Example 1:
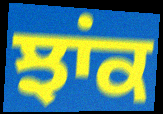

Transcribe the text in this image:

ਝਾਂਕ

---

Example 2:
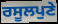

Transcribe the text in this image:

ਰਸੂਲਪੁਣੇ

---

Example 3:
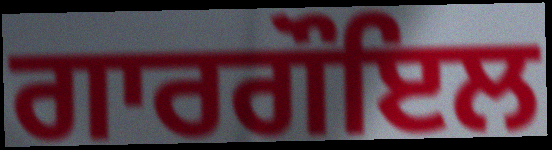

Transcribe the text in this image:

ਗਾਰਗੌਇਲ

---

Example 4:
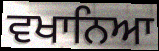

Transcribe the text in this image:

ਵਖਾਨਿਆ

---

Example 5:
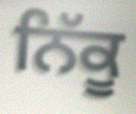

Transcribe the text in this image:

ਨਿੱਕੂ